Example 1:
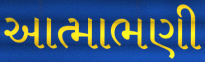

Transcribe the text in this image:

આત્માભણી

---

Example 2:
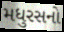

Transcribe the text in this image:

મધુરસનો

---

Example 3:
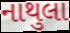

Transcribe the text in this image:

નાથુલા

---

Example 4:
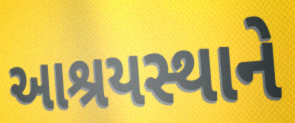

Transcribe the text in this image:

આશ્રયસ્થાને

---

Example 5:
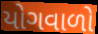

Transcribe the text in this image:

યોગવાળો